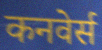
कनवेर्स